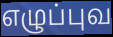
எழுப்புவ